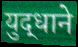
युद्धाने